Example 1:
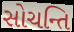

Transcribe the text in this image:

સોચન્તિ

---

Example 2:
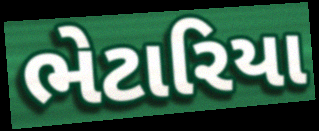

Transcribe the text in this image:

ભેટારિયા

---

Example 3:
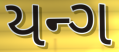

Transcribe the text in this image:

યન્ગ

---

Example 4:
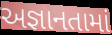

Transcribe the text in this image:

અજ્ઞાનતામાં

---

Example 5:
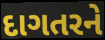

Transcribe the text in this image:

દાગતરને